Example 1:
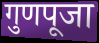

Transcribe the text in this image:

गुणपूजा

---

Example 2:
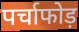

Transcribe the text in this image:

पर्चाफोड़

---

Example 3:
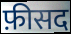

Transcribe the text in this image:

फ़ीसद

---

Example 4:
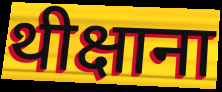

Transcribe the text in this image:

थीक्षाना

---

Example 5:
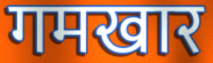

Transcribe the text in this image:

गमखार